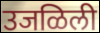
उजळिली